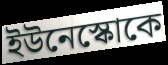
ইউনেস্কোকে